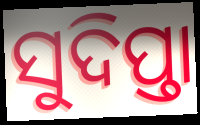
ସୁଦିପ୍ତା